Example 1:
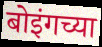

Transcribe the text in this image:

बोइंगच्या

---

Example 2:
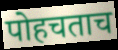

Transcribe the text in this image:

पोहचताच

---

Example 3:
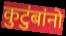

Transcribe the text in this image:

कुटुंबांनो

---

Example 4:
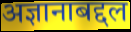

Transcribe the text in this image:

अज्ञानाबद्दल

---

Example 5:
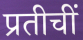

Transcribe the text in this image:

प्रतीचीं